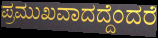
ಪ್ರಮುಖವಾದದ್ದೆಂದರೆ